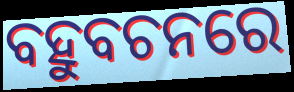
ବହୁବଚନରେ